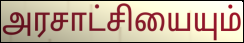
அரசாட்சியையும்